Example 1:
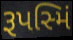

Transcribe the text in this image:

રૂપસ્મિં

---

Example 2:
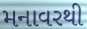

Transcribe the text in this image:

મનાવરથી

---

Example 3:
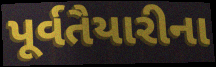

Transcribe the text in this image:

પૂર્વતૈયારીના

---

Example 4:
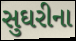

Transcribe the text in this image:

સુઘરીના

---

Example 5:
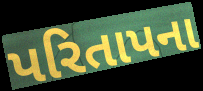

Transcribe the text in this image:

પરિતાપના